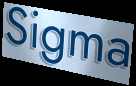
Sigma